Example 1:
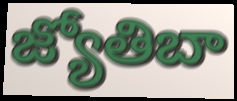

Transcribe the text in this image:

జ్యోతిబా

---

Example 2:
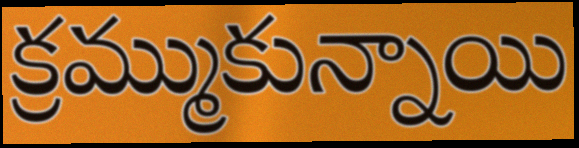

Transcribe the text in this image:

క్రమ్ముకున్నాయి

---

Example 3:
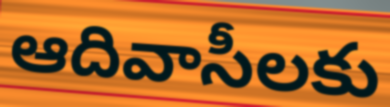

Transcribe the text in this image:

ఆదివాసీలకు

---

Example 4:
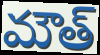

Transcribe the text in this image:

మౌత్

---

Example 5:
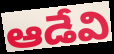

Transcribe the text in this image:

ఆడేవి